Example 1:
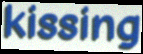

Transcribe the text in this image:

kissing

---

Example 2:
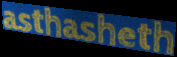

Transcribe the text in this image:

asthasheth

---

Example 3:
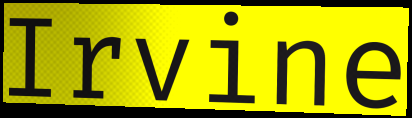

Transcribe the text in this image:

Irvine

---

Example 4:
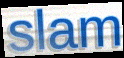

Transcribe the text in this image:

slam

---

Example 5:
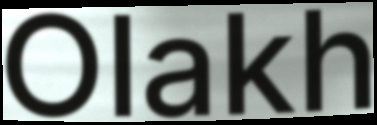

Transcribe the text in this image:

Olakh